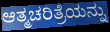
ಆತ್ಮಚರಿತ್ರೆಯನ್ನು